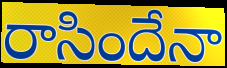
రాసిందేనా